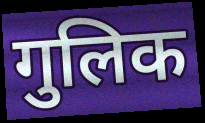
गुलिक